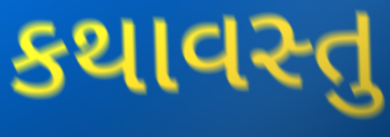
કથાવસ્તુ